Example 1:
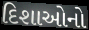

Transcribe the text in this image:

દિશાઓનો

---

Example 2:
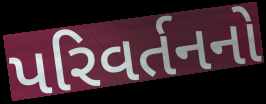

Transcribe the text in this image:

પરિવર્તનનો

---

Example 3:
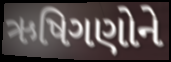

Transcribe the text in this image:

ઋષિગણોને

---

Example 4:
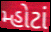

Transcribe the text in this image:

મ્હોટાં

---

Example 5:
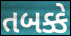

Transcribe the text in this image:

તબક્કે